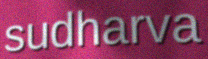
sudharva